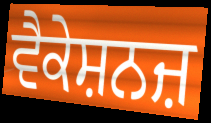
ਵੈਕੇਸ਼ਨਜ਼